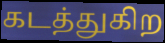
கடத்துகிற